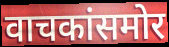
वाचकांसमोर